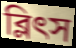
ব্লিৎস